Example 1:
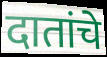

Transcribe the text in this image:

दातांचे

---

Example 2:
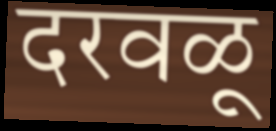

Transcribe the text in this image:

दरवळू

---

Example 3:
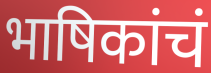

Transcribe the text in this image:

भाषिकांचं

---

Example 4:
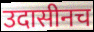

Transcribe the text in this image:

उदासीनच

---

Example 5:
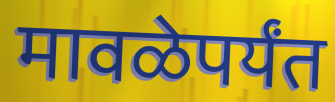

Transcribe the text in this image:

मावळेपर्यंत